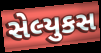
સેલ્યુકસ